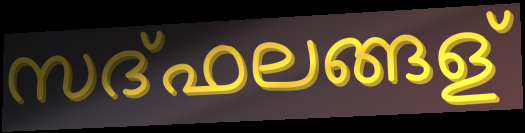
സദ്ഫലങ്ങള്